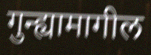
गुन्ह्यामागील